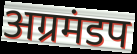
अग्रमंडप